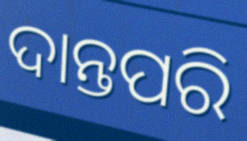
ଦାନ୍ତପରି